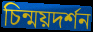
চিন্ময়দর্শন